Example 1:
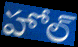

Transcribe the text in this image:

హోల్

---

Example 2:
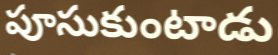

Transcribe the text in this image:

పూసుకుంటాడు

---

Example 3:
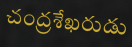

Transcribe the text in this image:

చంద్రశేఖరుడు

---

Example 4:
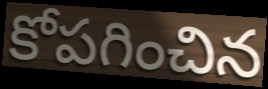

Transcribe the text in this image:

కోపగించిన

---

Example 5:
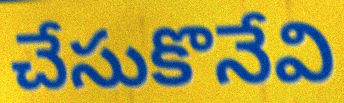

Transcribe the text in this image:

చేసుకొనేవి